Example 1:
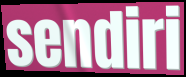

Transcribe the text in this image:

sendiri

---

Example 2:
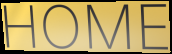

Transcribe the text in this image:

HOME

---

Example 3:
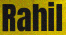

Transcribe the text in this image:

Rahil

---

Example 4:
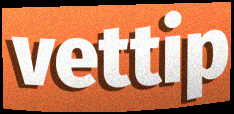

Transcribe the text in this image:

vettip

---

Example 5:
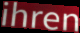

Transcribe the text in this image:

ihren